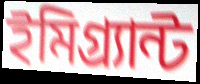
ইমিগ্র্যান্ট